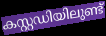
കസ്റ്റഡിയിലുണ്ട്